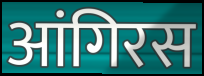
आंगिरस